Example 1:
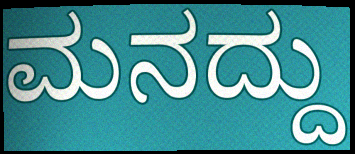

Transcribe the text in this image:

ಮನದ್ದು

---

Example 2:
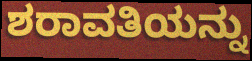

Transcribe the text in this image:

ಶರಾವತಿಯನ್ನು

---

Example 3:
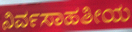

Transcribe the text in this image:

ನಿರ್ವಸಾಹತೀಯ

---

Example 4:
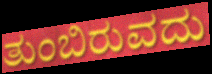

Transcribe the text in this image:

ತುಂಬಿರುವದು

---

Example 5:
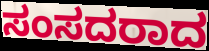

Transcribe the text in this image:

ಸಂಸದರಾದ